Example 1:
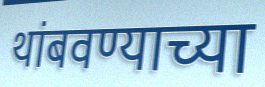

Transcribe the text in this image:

थांबवण्याच्या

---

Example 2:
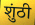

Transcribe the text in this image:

शुंठी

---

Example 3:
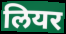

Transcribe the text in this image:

लियर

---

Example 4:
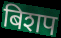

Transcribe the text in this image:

बिशप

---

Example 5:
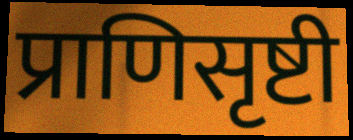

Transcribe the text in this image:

प्राणिसृष्टी